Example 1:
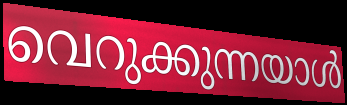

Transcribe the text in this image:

വെറുക്കുന്നയാൾ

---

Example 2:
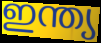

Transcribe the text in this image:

ഇന്ത്യ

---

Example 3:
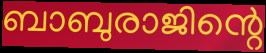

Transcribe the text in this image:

ബാബുരാജിന്റെ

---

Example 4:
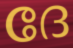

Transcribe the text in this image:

ദേ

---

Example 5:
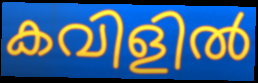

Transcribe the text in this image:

കവിളിൽ